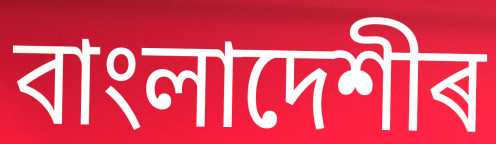
বাংলাদেশীৰ